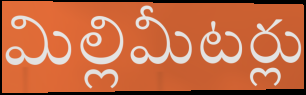
మిల్లిమీటర్లు